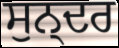
ਸੁਨ੍ਦਰ